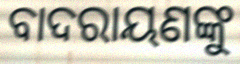
ବାଦରାୟଣଙ୍କୁ